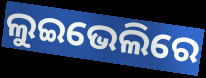
ଲୁଇଭେଲିରେ